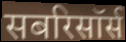
सबरिसॉर्स